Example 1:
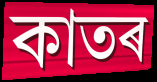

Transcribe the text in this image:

কাতৰ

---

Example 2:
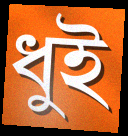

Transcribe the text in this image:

ধুই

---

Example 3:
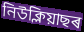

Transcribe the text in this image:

নিউক্লিয়াছৰ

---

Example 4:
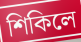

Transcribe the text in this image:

শিকিলে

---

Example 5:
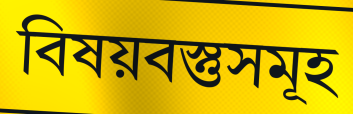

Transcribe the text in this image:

বিষয়বস্তুসমূহ